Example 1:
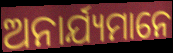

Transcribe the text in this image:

ଅନାର୍ଯ୍ୟମାନେ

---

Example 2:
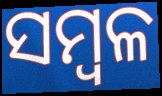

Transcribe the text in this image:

ସମ୍ବଳ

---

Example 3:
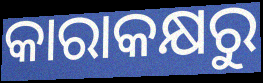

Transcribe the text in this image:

କାରାକକ୍ଷରୁ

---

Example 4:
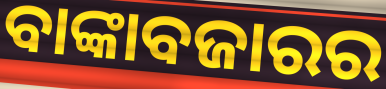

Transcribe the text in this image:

ବାଙ୍କାବଜାରର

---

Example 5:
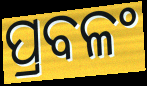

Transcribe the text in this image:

ପ୍ରବଳଂ